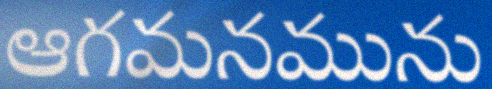
ఆగమనమును